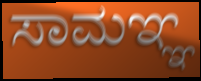
ಸಾಮಞ್ಞ